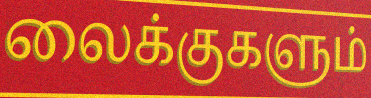
லைக்குகளும்